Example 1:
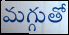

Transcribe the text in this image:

మగ్గుతో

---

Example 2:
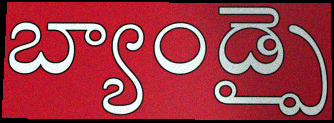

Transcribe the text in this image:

బ్యాండ్పై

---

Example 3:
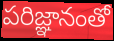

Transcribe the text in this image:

పరిజ్ఞానంతో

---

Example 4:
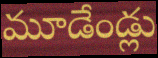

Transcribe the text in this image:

మూడేండ్లు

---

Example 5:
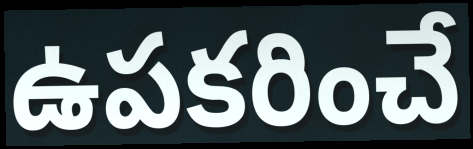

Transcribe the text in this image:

ఉపకరించే